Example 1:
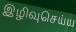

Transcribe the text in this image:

இழிவுசெய்ய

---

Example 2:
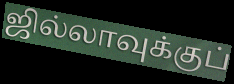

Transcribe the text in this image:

ஜில்லாவுக்குப்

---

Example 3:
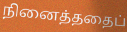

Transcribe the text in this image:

நினைத்ததைப்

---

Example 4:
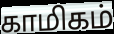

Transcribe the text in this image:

காமிகம்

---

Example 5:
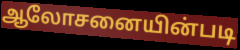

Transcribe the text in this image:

ஆலோசனையின்படி